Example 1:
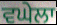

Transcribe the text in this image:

ਵਘੇਲਾ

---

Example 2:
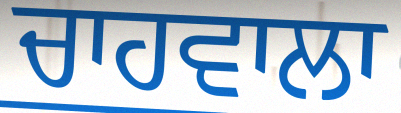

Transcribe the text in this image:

ਚਾਹਵਾਲਾ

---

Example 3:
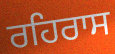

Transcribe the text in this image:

ਰਹਿਰਾਸ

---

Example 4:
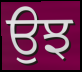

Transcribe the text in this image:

ਉਝ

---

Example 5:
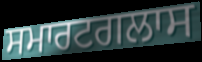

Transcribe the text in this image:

ਸਮਾਰਟਗਲਾਸ